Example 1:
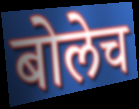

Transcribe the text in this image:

बोलेच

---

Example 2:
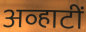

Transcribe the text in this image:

अव्हाटीं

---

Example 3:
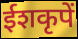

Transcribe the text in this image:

ईशकृपें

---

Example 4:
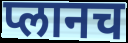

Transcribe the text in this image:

प्लानच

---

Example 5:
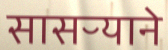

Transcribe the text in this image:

सासऱ्याने